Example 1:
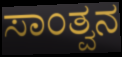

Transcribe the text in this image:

ಸಾಂತ್ವನ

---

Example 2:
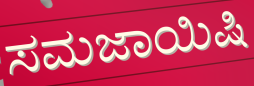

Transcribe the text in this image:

ಸಮಜಾಯಿಷಿ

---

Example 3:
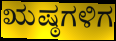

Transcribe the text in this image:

ಋಷ್ಠಗಳಿಗ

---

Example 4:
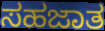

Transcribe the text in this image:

ಸಹಜಾತ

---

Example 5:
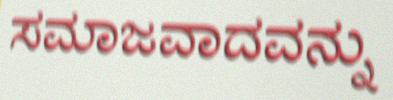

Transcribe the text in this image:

ಸಮಾಜವಾದವನ್ನು